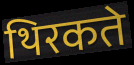
थिरकते